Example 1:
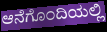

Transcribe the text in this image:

ಆನೆಗೊಂದಿಯಲ್ಲಿ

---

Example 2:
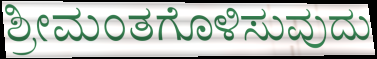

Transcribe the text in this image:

ಶ್ರೀಮಂತಗೊಳಿಸುವುದು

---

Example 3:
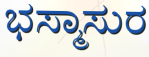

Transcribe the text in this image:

ಭಸ್ಮಾಸುರ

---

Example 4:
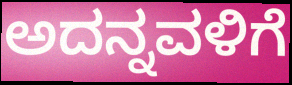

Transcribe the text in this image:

ಅದನ್ನವಳಿಗೆ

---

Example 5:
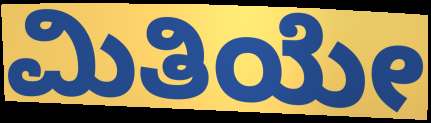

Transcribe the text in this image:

ಮಿತಿಯೇ